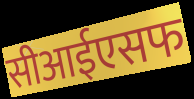
सीआईएसफ